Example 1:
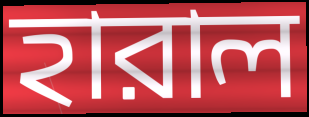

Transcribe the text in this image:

হারাল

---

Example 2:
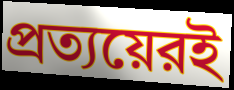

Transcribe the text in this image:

প্রত্যয়েরই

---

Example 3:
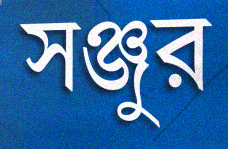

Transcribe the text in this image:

সঞ্জুর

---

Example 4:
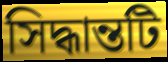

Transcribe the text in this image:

সিদ্ধান্তটি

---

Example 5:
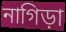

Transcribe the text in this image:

নাগিড়া